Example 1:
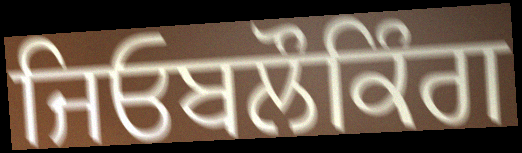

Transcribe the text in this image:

ਜਿਓਬਲੌਕਿੰਗ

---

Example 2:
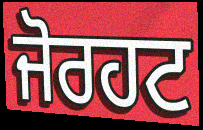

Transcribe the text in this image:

ਜੋਰਹਟ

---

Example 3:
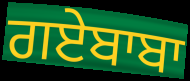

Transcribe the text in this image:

ਗਏਬਾਬਾ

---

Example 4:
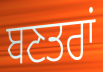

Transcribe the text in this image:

ਬਣਤਰਾਂ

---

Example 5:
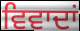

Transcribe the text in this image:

ਵਿਵਾਦਾਂ